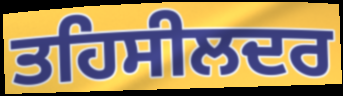
ਤਹਿਸੀਲਦਰ